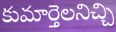
కుమార్తెలనిచ్చి